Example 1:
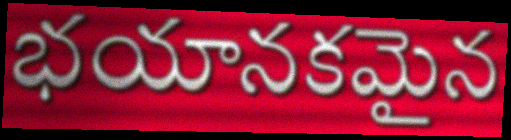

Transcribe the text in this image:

భయానకమైన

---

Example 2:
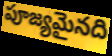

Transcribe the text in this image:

పూజ్యమైనది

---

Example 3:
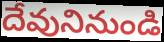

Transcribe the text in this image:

దేవునినుండి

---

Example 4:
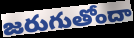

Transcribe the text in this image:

జరుగుతోందా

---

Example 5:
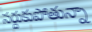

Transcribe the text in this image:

సర్దుకుపోతున్నా